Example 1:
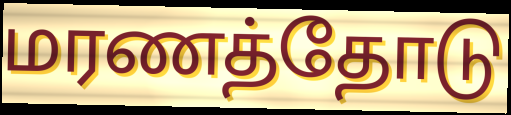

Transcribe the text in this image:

மரணத்தோடு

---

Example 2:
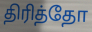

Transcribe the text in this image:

திரித்தோ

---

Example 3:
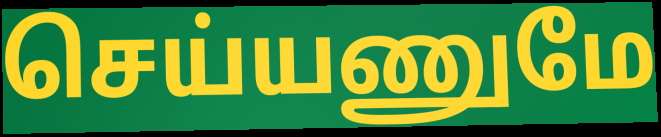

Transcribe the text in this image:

செய்யணுமே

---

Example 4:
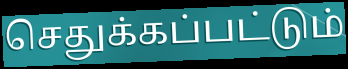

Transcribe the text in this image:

செதுக்கப்பட்டும்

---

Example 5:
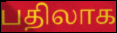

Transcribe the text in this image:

பதிலாக